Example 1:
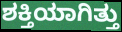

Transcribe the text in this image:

ಶಕ್ತಿಯಾಗಿತ್ತು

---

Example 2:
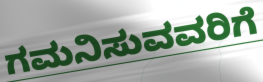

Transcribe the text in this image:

ಗಮನಿಸುವವರಿಗೆ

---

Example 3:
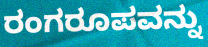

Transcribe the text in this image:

ರಂಗರೂಪವನ್ನು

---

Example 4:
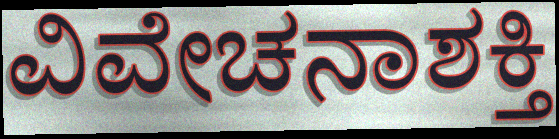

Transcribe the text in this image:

ವಿವೇಚನಾಶಕ್ತಿ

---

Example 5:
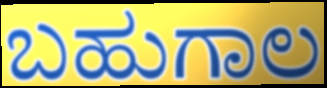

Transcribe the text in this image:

ಬಹುಗಾಲ